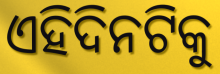
ଏହିଦିନଟିକୁ